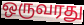
ஒருவரது